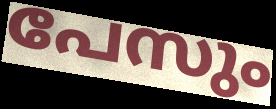
പേസും